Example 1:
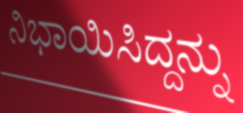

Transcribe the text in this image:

ನಿಭಾಯಿಸಿದ್ದನ್ನು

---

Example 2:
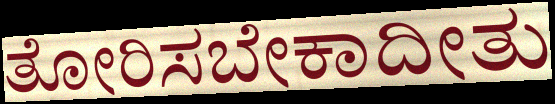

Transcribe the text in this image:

ತೋರಿಸಬೇಕಾದೀತು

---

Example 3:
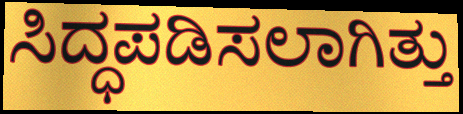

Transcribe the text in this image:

ಸಿದ್ಧಪಡಿಸಲಾಗಿತ್ತು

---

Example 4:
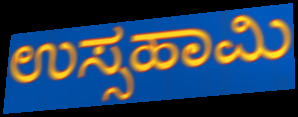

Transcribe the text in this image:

ಉಸ್ಸಹಾಮಿ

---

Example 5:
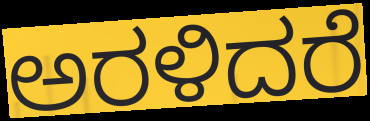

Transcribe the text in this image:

ಅರಳಿದರೆ